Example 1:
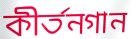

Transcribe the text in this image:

কীর্তনগান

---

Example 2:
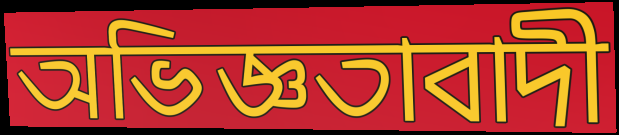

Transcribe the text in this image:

অভিজ্ঞতাবাদী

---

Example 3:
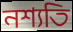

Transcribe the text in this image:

নশ্যতি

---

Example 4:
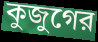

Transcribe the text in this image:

কুজুগের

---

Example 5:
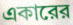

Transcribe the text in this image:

একারের